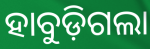
ହାବୁଡ଼ିଗଲା